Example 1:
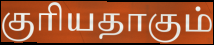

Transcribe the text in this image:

குரியதாகும்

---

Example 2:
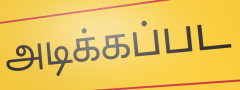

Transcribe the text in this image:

அடிக்கப்பட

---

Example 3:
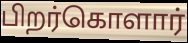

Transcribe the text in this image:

பிறர்கொளார்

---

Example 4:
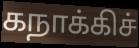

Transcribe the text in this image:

கநாக்கிச்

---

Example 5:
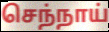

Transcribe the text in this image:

செந்நாய்